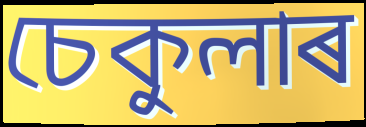
চেকুলাৰ